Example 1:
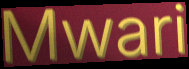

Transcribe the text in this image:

Mwari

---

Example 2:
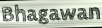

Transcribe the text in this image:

Bhagawan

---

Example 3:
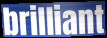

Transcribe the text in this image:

brilliant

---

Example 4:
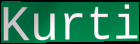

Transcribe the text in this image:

Kurti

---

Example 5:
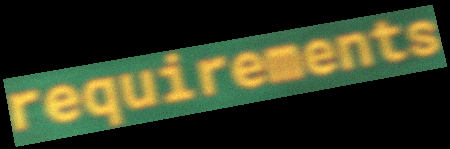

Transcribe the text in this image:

requirements